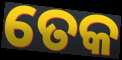
ତେକ